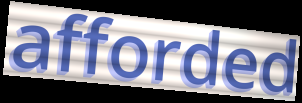
afforded